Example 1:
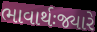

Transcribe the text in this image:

ભાવાર્થઃજ્યારે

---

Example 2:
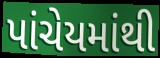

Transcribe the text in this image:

પાંચેયમાંથી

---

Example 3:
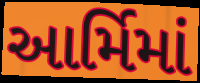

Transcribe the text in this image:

આર્મિમાં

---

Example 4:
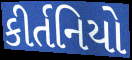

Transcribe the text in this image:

કીર્તનિયો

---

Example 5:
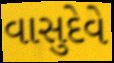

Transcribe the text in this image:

વાસુદેવે